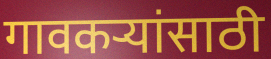
गावकऱ्यांसाठी